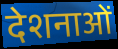
देशनाओं